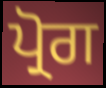
ਪ੍ਰੋਗ